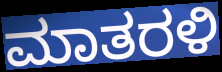
ಮಾತರಳಿ